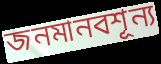
জনমানবশূন্য